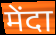
मेंदा